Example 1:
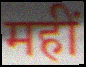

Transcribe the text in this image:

महीं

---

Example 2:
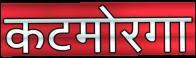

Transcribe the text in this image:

कटमोरगा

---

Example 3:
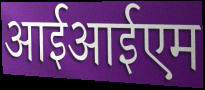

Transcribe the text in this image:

आईआईएम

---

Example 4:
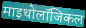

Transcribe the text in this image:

माइथोलॉजिकल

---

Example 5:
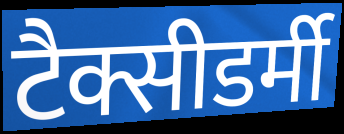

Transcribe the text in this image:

टैक्सीडर्मी